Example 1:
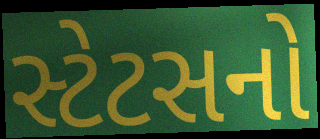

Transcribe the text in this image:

સ્ટેટસનો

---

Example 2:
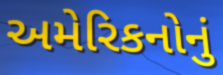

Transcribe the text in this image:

અમેરિકનોનું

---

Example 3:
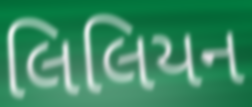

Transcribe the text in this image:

લિલિયન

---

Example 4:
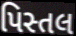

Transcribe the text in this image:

પિસ્તલ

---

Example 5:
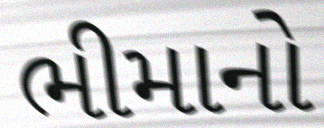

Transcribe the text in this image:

ભીમાનો